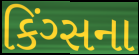
કિંગ્સના